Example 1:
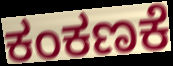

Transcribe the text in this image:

ಕಂಕಣಕೆ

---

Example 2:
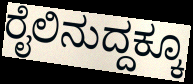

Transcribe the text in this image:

ರೈಲಿನುದ್ದಕ್ಕೂ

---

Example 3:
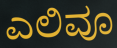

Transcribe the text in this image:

ಎಲಿವೂ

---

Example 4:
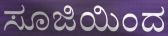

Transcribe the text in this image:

ಸೂಜಿಯಿಂದ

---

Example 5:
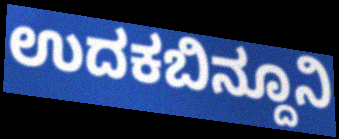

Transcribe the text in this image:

ಉದಕಬಿನ್ದೂನಿ